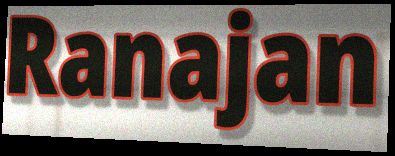
Ranajan